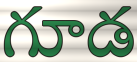
గూడ